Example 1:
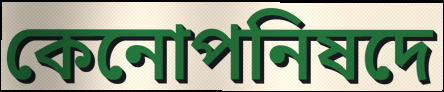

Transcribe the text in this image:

কেনোপনিষদে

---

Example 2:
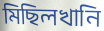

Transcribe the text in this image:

মিছিলখানি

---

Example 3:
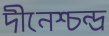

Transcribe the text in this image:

দীনেশ্চন্দ্র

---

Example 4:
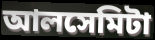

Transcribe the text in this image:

আলসেমিটা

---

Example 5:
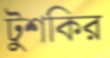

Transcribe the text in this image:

টুশকির